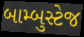
બામ્બુસ્ટેજ